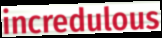
incredulous